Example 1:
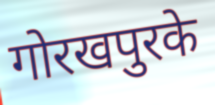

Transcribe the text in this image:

गोरखपुरके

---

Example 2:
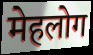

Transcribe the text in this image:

मेहलोग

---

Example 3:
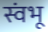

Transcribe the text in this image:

स्वंभू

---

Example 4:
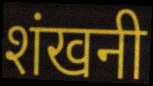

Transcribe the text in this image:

शंखनी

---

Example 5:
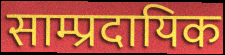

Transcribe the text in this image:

साम्प्रदायिक